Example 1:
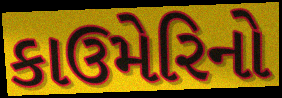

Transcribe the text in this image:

કાઉમેરિનો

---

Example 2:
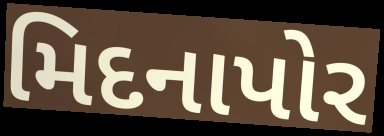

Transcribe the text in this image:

મિદનાપોર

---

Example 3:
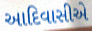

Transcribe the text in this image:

આદિવાસીએ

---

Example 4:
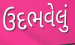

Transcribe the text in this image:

ઉદભવેલું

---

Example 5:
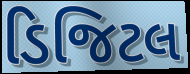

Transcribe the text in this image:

ડિજિટલ